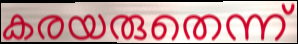
കരയരുതെന്ന്